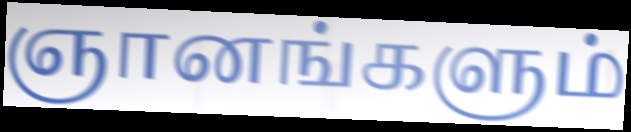
ஞானங்களும்